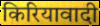
किरियावादी